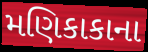
મણિકાકાના